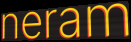
neram